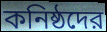
কনিষ্ঠদের